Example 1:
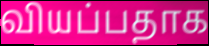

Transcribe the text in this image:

வியப்பதாக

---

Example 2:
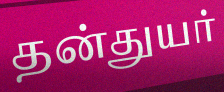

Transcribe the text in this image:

தன்துயர்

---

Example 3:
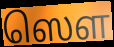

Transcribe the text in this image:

ஸௌ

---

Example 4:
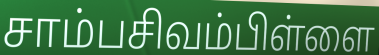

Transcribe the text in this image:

சாம்பசிவம்பிள்ளை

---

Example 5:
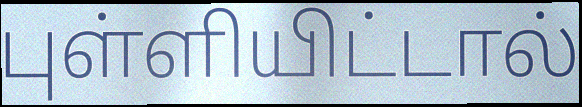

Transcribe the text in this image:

புள்ளியிட்டால்